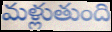
మళ్లుతుంది